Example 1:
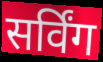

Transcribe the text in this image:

सर्विंग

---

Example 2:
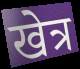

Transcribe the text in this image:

खेत्र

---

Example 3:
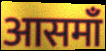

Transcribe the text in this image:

आसमाँ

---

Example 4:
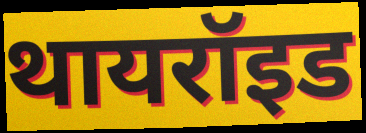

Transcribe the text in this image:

थायरॉइड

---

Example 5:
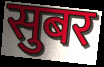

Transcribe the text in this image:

सुबर